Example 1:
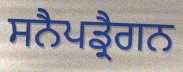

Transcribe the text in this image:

ਸਨੈਪਡ੍ਰੈਗਨ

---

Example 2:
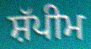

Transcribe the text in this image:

ਸ਼ੱਪੀਮ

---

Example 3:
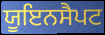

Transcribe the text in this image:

ਯੂਇਨਸੈਪਟ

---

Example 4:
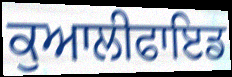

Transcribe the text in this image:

ਕੁਆਲੀਫਾਇਡ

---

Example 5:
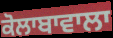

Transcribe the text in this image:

ਕੋਲਾਬਾਵਾਲਾ